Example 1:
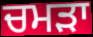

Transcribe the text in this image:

ਚਮੜਾ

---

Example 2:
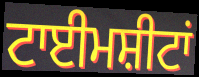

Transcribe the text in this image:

ਟਾਈਮਸ਼ੀਟਾਂ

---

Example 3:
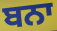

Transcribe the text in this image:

ਬਨਾ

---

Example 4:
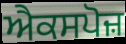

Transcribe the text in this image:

ਐਕਸਪੋਜ਼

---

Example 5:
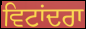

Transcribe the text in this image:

ਵਿਟਾਂਦਰਾ